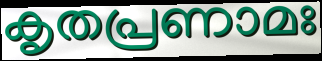
കൃതപ്രണാമഃ